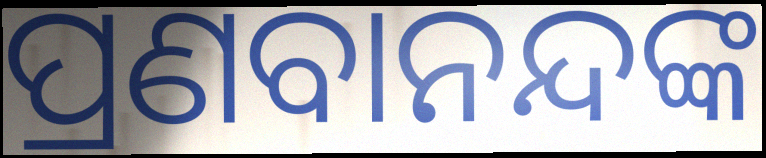
ପ୍ରଣବାନନ୍ଦଙ୍କ